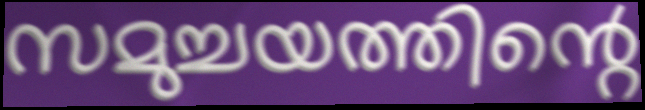
സമുച്ചയത്തിന്റെ